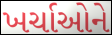
ખર્ચાઓને